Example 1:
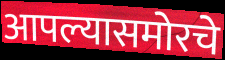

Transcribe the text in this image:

आपल्यासमोरचे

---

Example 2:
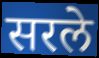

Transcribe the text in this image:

सरले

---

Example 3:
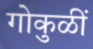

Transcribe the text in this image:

गोकुळीं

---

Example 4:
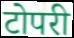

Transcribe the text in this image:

टोपरी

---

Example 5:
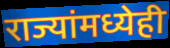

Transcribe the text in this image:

राज्यांमध्येही